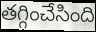
తగ్గించేసింది